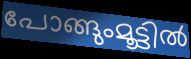
പോങ്ങുംമൂട്ടിൽ